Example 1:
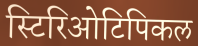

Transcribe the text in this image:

स्टिरिओटिपिकल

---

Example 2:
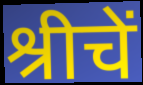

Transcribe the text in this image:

श्रीचें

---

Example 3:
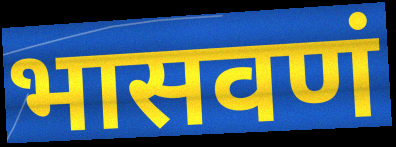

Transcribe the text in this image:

भासवणं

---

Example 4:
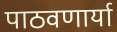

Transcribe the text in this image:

पाठवणार्या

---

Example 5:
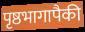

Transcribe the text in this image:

पृष्ठभागापैकी